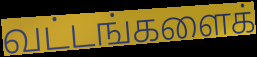
வட்டங்களைக்